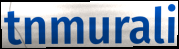
tnmurali